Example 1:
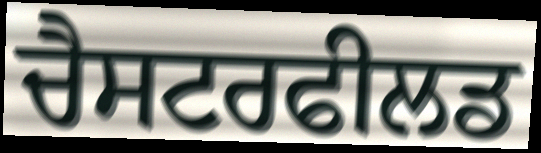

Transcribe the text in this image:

ਚੈਸਟਰਫੀਲਡ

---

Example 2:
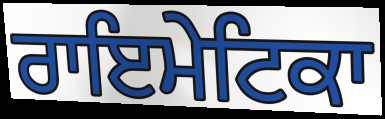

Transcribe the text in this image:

ਰਾਇਮੇਟਿਕਾ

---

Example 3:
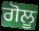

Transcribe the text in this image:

ਗੋਲੂ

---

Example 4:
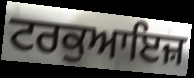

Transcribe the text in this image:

ਟਰਕੁਆਇਜ਼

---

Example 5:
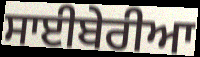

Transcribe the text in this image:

ਸਾਈਬੇਰੀਆ